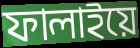
ফালাইয়ে